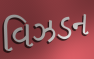
વિઝડન